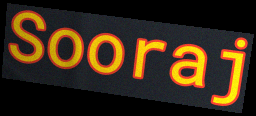
Sooraj